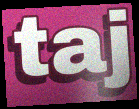
taj